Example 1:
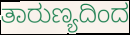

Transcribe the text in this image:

ತಾರುಣ್ಯದಿಂದ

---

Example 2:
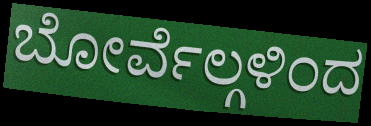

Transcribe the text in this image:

ಬೋರ್ವೆಲ್ಗಳಿಂದ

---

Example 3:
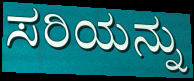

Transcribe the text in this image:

ಸರಿಯನ್ನು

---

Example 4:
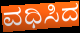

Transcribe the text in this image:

ವಧಿಸಿದ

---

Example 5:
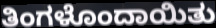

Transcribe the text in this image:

ತಿಂಗಳೊಂದಾಯಿತು